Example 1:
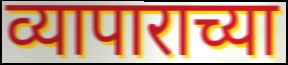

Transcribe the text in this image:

व्यापाराच्या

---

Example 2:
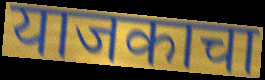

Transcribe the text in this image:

याजकाचा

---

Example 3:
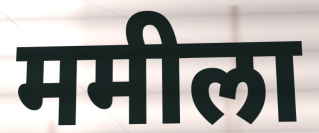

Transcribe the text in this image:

ममीला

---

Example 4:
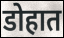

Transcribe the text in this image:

डोहात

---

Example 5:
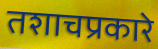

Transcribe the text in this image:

तशाचप्रकारे